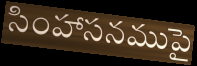
సింహాసనముపై